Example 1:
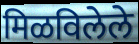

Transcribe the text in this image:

मिळविलेले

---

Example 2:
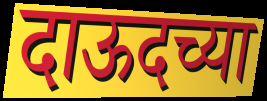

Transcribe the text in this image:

दाऊदच्या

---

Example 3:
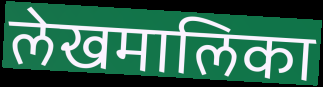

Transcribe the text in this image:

लेखमालिका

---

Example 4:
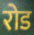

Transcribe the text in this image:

रोड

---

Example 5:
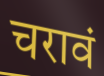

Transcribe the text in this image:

चरावं